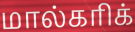
மால்கரிக்